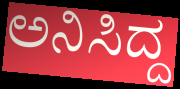
ಅನಿಸಿದ್ದ